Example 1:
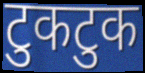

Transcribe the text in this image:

टुकटुक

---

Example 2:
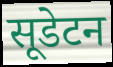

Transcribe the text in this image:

सूडेटन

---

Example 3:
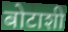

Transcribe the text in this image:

बोटाशी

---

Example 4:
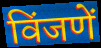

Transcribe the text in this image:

विंजणें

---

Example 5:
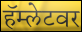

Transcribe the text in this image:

हॅम्लेटवर